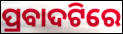
ପ୍ରବାଦଟିରେ